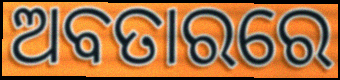
ଅବତାରରେ